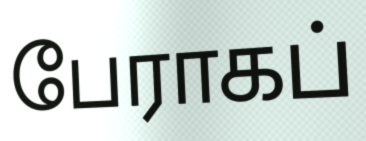
பேராகப்